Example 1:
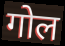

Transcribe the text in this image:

गोल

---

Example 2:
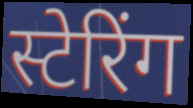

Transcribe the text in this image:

स्टेरिंग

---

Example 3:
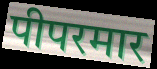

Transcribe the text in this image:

पीपरमार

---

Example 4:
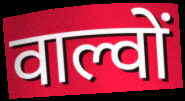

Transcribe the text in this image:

वाल्वों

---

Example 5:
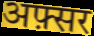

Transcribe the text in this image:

अफ़्सर